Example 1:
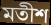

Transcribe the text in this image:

মতীশ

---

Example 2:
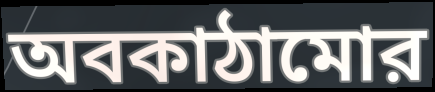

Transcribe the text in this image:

অবকাঠামোর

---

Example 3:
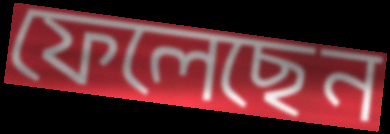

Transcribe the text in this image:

ফেলেছেন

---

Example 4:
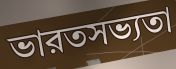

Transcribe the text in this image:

ভারতসভ্যতা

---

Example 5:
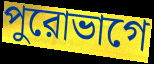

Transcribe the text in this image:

পুরোভাগে